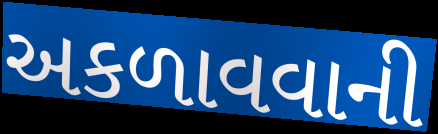
અકળાવવાની